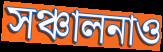
সঞ্চালনাও